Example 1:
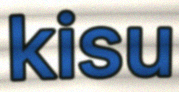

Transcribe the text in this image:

kisu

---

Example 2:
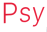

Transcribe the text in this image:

Psy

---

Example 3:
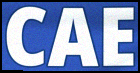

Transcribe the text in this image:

CAE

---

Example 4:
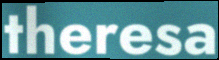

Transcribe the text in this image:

theresa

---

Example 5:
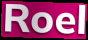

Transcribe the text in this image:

Roel